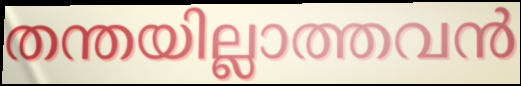
തന്തയില്ലാത്തവൻ